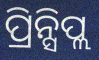
ପ୍ରିନ୍ସିପ୍ଲ